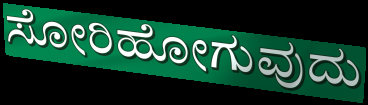
ಸೋರಿಹೋಗುವುದು